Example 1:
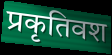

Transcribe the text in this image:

प्रकृतिवश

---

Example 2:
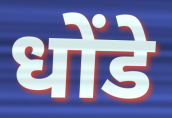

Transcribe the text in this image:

धोंडे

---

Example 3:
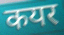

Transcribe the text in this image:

कयर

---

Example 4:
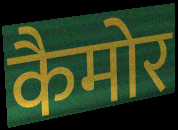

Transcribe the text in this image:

कैमोर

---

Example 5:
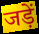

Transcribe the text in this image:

जड़ें